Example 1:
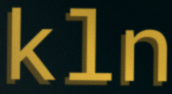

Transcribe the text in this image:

kln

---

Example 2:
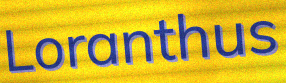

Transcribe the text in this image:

Loranthus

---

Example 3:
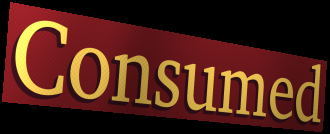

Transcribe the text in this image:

Consumed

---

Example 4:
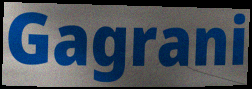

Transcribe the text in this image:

Gagrani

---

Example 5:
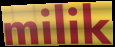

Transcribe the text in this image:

milik